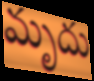
మృదు